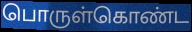
பொருள்கொண்ட